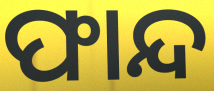
ଫାନ୍ଦ